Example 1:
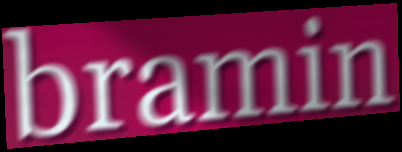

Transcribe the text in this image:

bramin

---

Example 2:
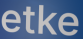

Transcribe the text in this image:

etke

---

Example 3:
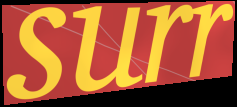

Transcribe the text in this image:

surr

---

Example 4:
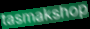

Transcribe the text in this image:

tasmakshop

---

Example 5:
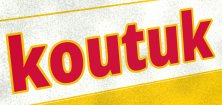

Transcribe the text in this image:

koutuk